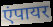
एंपायर